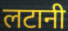
लटानी